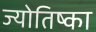
ज्योतिष्का